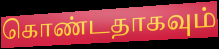
கொண்டதாகவும்